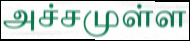
அச்சமுள்ள